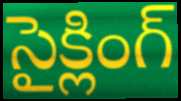
సైక్లింగ్